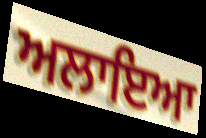
ਅਲਾਇਆ